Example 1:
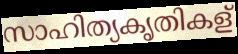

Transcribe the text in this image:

സാഹിത്യകൃതികള്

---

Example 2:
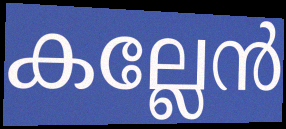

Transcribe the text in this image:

കല്ലേൻ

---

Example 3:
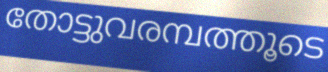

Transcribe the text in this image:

തോട്ടുവരമ്പത്തൂടെ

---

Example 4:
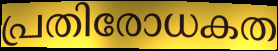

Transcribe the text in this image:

പ്രതിരോധകത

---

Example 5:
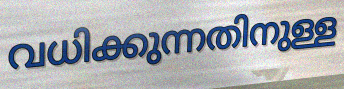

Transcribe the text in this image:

വധിക്കുന്നതിനുള്ള